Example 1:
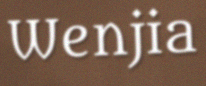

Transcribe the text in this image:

Wenjia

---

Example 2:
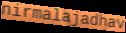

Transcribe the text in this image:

nirmalajadhav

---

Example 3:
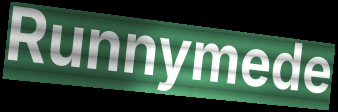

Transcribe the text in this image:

Runnymede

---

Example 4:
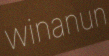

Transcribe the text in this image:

winanun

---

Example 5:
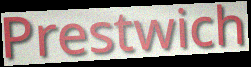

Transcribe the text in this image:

Prestwich